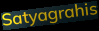
Satyagrahis